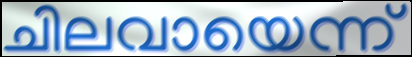
ചിലവായെന്ന്